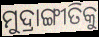
ମୁଦ୍ରାଙ୍ଗୀତିକୁ